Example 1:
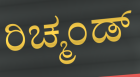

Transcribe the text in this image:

ರಿಚ್ಮಂಡ್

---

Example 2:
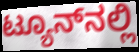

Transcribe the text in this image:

ಟ್ಯೂನ್‌ನಲ್ಲಿ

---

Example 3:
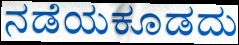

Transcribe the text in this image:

ನಡೆಯಕೂಡದು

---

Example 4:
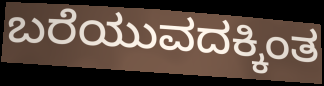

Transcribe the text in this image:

ಬರೆಯುವದಕ್ಕಿಂತ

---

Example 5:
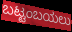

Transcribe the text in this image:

ಬಟ್ಟಂಬಯಲು